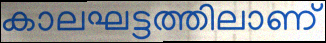
കാലഘട്ടത്തിലാണ്